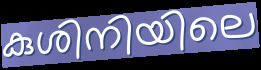
കുശിനിയിലെ